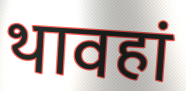
थावहां